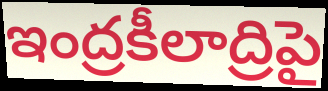
ఇంద్రకీలాద్రిపై